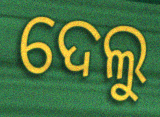
ଦେଲୁ